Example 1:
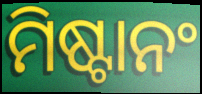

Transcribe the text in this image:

ମିଷ୍ଟାନଂ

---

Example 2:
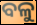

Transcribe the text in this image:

ବଳୁ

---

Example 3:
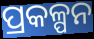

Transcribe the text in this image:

ପ୍ରକଳ୍ପନ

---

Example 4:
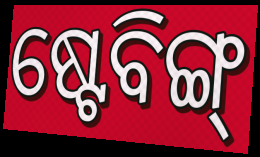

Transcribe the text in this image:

ଷ୍ଟେବିଙ୍ଗ୍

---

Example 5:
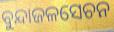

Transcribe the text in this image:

ବୁନ୍ଦାଜଳସେଚନ